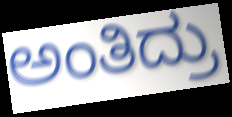
ಅಂತಿದ್ರು